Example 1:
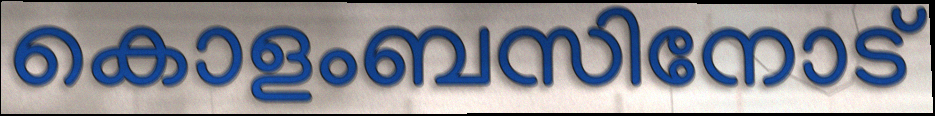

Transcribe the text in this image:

കൊളംബസിനോട്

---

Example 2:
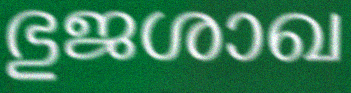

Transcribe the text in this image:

ഭുജശാഖ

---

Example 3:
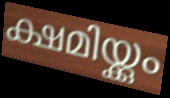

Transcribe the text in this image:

ക്ഷമിയ്ക്കും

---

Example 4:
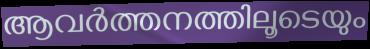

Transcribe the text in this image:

ആവർത്തനത്തിലൂടെയും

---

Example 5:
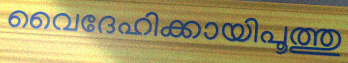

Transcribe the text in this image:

വൈദേഹിക്കായിപൂത്തു